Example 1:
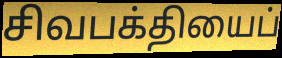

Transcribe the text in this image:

சிவபக்தியைப்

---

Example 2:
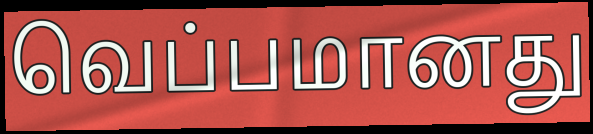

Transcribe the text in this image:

வெப்பமானது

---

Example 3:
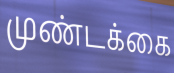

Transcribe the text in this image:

முண்டக்கை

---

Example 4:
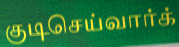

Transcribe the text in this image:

குடிசெய்வார்க்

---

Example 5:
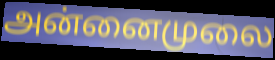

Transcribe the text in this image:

அன்னைமுலை